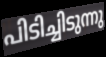
പിടിച്ചിടുന്നു